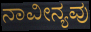
ನಾವೀನ್ಯವು